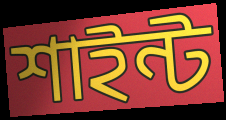
শাইন্ট